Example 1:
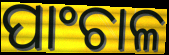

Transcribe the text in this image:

ପାଂଚାଳ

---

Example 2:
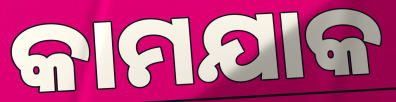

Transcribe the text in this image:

କାମଯାକ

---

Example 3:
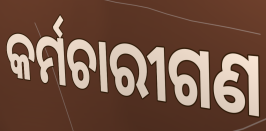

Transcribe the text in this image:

କର୍ମଚାରୀଗଣ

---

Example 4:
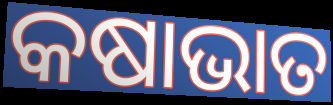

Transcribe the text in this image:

କଷାଭାତ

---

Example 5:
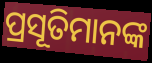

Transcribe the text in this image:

ପ୍ରସୂତିମାନଙ୍କ